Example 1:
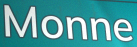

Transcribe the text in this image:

Monne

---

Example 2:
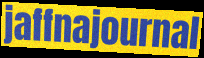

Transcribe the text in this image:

jaffnajournal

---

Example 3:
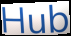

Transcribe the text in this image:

Hub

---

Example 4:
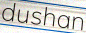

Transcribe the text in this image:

dushan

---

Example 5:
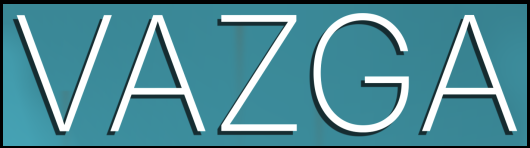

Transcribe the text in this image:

VAZGA